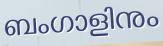
ബംഗാളിനും